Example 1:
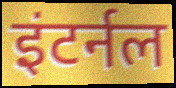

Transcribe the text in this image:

इंटर्नल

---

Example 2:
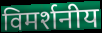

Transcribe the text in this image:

विमर्शनीय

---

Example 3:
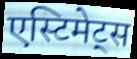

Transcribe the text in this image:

एस्टिमेट्स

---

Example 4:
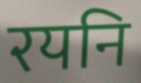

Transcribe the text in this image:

रयनि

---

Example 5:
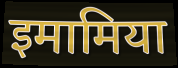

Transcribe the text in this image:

इमामिया